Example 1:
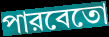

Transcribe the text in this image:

পারবেতো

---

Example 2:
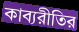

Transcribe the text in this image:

কাব্যরীতির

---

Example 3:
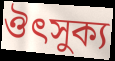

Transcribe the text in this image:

ঔৎসুক্য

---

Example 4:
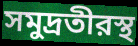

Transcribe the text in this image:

সমুদ্রতীরস্থ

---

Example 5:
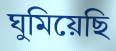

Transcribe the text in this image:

ঘুমিয়েছি